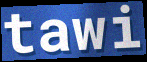
tawi